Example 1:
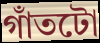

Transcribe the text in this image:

গাঁতটো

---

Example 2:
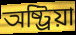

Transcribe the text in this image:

অষ্ট্ৰিয়া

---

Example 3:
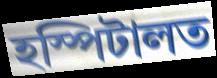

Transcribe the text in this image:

হস্পিটালত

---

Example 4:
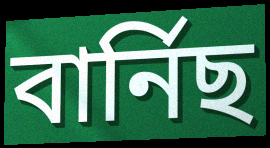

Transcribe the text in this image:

বাৰ্নিছ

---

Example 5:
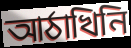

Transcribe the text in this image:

আঠাখিনি